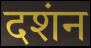
दशंन